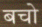
बचो